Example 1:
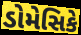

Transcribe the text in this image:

ડોમેસિકે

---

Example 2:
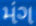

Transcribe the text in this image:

મંગ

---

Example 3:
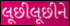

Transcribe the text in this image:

લૂછીલૂછીને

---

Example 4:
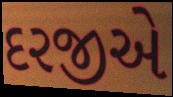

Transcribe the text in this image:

દરજીએ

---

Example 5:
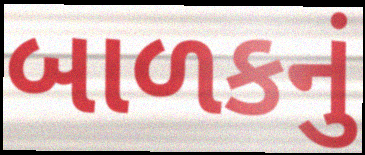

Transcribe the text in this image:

બાળકનું